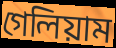
গেলিয়াম